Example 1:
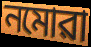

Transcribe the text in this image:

নমোৱা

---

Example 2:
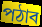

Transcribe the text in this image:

পঠাব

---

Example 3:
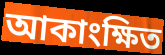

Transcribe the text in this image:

আকাংক্ষিত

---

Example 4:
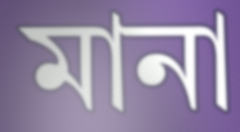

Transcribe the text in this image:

মানা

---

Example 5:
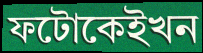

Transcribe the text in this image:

ফটোকেইখন